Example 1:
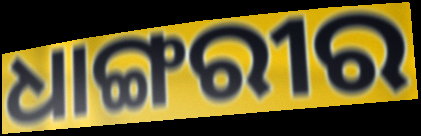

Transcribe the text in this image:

ଧାଙ୍ଗରୀର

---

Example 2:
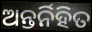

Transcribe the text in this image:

ଅନ୍ତର୍ନିହିତ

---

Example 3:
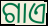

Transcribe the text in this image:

ଗାଏ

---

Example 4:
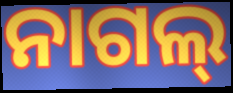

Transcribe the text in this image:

ନାଗଲ୍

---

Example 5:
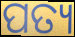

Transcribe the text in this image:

ପତ୍ୟ